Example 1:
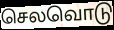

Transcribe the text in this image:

செலவொடு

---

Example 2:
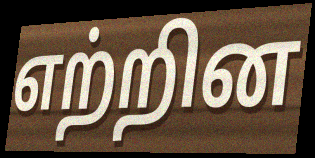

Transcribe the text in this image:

எற்றின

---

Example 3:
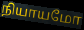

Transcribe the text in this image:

நியாயமோ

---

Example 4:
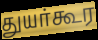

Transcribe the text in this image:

துயர்கூர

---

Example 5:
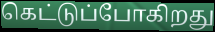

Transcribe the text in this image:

கெட்டுப்போகிறது